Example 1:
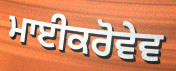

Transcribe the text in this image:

ਮਾਈਕਰੋਵੇਵ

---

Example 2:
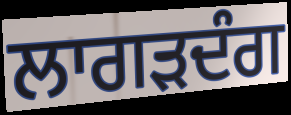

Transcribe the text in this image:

ਲਾਗੜਦੰਗ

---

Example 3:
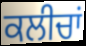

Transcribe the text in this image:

ਕਲੀਚਾਂ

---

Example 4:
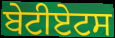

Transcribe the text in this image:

ਬੇਟੀਏਟਸ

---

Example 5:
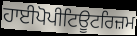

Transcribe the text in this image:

ਹਾਈਪੋਪੀਟਿਊਟਰਿਜ਼ਮ